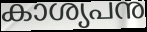
കാശ്യപനു